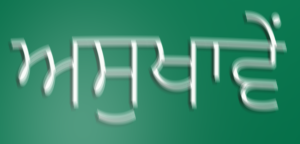
ਅਸੁਖਾਵੇਂ